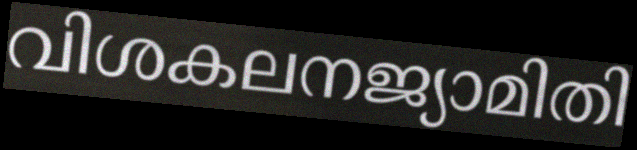
വിശകലനജ്യാമിതി